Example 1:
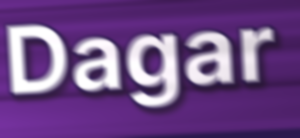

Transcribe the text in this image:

Dagar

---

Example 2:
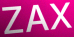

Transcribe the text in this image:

ZAX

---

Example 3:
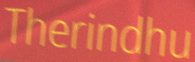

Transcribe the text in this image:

Therindhu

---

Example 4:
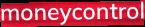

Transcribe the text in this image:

moneycontrol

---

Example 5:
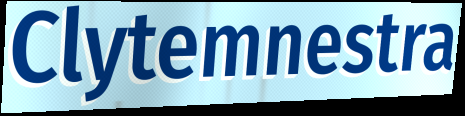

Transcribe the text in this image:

Clytemnestra